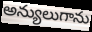
అన్యులుగాను